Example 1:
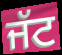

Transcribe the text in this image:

ਜੱਟ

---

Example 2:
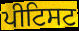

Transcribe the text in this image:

ਪੀਟਿਸਟ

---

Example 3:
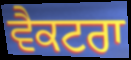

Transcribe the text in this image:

ਵੈਕਟਰਾ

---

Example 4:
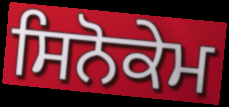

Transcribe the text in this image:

ਸਿਨੋਕੇਮ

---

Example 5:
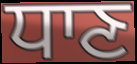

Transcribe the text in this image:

ਧਾਣ